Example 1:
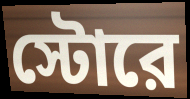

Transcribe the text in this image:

স্টোরে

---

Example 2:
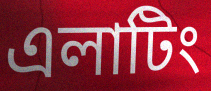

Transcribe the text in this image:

এলাটিং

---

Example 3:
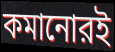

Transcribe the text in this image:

কমানোরই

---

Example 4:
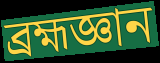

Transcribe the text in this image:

ব্রহ্মজ্ঞান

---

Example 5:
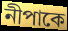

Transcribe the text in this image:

নীপাকে